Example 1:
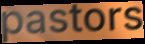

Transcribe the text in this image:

pastors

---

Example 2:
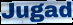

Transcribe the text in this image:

Jugad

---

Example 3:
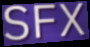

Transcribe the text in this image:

SFX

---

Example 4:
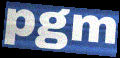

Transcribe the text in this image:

pgm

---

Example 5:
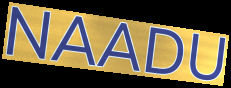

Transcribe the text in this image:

NAADU